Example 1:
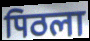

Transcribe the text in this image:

पिठला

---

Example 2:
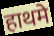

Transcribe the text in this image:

हाथमे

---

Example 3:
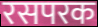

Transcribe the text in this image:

रसपरक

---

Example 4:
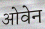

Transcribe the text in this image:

ओवेन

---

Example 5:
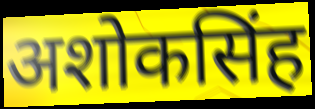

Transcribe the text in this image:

अशोकसिंह